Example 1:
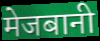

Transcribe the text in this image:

मेजबानी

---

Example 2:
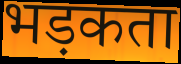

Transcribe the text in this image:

भड़कता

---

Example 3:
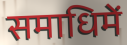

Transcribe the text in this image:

समाधिमें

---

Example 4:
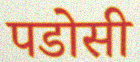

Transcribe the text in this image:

पडोसी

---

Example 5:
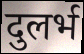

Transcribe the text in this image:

दुलर्भ